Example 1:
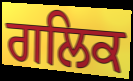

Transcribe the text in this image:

ਗਲਿਕ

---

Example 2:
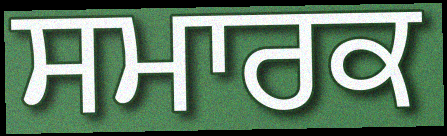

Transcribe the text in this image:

ਸਮਾਰਕ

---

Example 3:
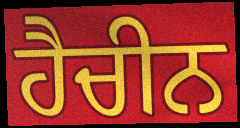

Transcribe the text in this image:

ਹੈਚੀਨ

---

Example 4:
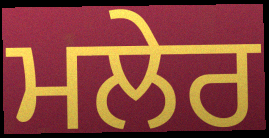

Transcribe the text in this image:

ਮਲੇਰ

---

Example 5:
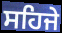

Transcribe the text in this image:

ਸਹਿਜੇ